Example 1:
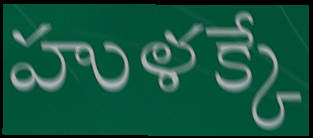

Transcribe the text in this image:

హుళక్కే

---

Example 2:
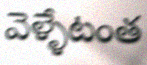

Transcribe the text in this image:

వెళ్ళేటంత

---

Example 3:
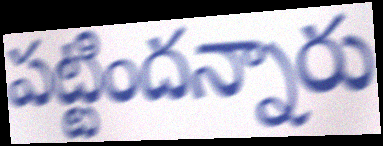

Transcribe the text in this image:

పట్టిందన్నారు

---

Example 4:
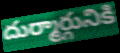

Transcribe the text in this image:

దుర్మార్గునికి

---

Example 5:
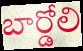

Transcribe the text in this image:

బార్డోలి